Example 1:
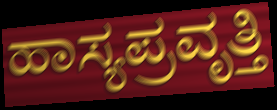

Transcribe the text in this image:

ಹಾಸ್ಯಪ್ರವೃತ್ತಿ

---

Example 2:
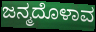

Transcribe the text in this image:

ಜನ್ಮದೊಳಾವ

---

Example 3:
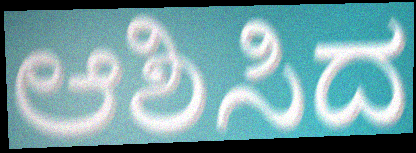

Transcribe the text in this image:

ಆಶಿಸಿದ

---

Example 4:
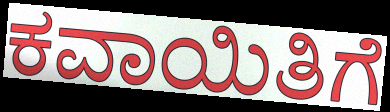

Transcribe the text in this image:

ಕವಾಯಿತಿಗೆ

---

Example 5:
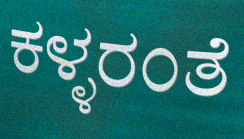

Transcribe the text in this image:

ಕಳ್ಳರಂತೆ